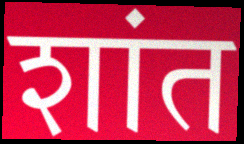
शांत